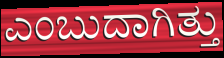
ಎಂಬುದಾಗಿತ್ತು